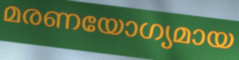
മരണയോഗ്യമായ